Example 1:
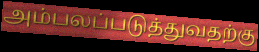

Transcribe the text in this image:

அம்பலப்படுத்துவதற்கு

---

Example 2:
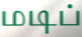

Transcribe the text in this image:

மடிப்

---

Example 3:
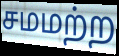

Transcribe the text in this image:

சமமற்ற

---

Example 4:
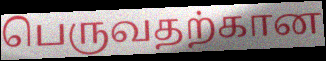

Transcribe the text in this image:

பெருவதற்கான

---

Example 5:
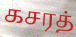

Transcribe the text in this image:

கசரத்